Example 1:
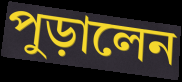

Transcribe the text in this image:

পুড়ালেন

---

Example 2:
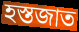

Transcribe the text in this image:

হস্তজাত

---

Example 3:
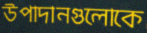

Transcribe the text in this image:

উপাদানগুলোকে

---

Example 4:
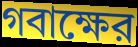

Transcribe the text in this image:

গবাক্ষের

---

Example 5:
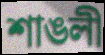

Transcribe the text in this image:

শাঙলী